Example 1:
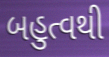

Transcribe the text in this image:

બહુત્વથી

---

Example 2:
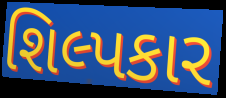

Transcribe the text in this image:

શિલ્પકાર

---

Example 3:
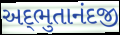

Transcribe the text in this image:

અદ્‌ભુતાનંદજી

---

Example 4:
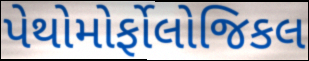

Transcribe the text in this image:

પેથોમોર્ફોલોજિકલ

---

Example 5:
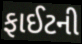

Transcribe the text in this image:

ફાઈટની